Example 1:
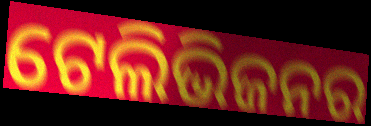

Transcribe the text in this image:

ଟେଲିଭିଜନର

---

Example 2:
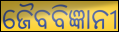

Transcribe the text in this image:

ଜୈବବିଜ୍ଞାନୀ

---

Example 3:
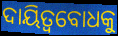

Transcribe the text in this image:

ଦାୟିତ୍ୱବୋଧକୁ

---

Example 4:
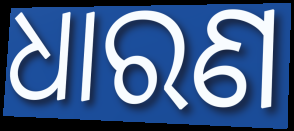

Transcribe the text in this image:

ଧାରଣ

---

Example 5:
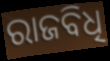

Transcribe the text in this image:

ରାଜବିଧି